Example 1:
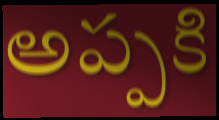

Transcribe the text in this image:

అప్పకి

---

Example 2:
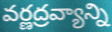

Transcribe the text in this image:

వర్ణద్రవ్యాన్ని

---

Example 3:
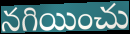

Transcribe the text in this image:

నగియించు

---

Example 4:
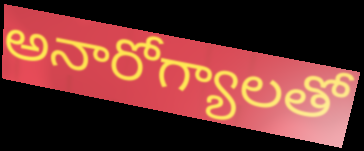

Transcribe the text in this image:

అనారోగ్యాలతో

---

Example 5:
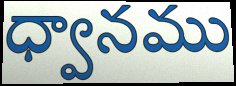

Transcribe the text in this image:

ధ్వానము